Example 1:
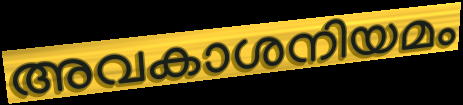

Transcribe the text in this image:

അവകാശനിയമം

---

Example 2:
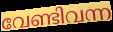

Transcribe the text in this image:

വേണ്ടിവന്ന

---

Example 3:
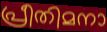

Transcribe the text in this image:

പ്രീതിമനാ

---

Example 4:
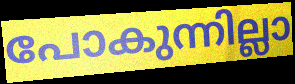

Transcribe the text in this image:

പോകുന്നില്ലാ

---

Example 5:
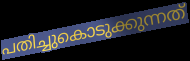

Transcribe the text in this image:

പതിച്ചുകൊടുക്കുന്നത്